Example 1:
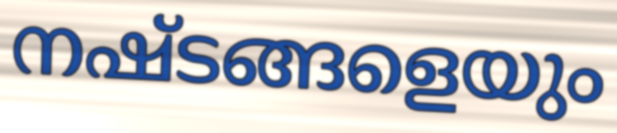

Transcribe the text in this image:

നഷ്ടങ്ങളെയും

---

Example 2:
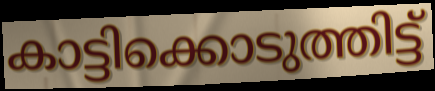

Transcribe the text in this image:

കാട്ടിക്കൊടുത്തിട്ട്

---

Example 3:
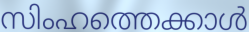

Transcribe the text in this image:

സിംഹത്തെക്കാൾ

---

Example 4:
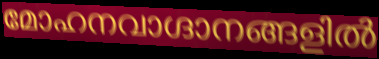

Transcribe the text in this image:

മോഹനവാഗ്ദാനങ്ങളിൽ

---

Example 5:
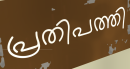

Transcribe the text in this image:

പ്രതിപത്തി